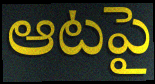
ఆటపై